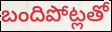
బందిపోట్లతో